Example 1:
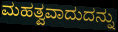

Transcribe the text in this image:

ಮಹತ್ವವಾದುದನ್ನು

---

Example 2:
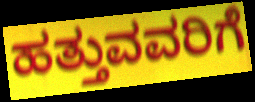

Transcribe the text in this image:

ಹತ್ತುವವರಿಗೆ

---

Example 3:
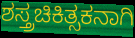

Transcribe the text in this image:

ಶಸ್ತ್ರಚಿಕಿತ್ಸಕನಾಗಿ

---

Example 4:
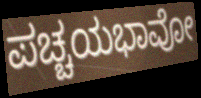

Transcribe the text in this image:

ಪಚ್ಚಯಭಾವೋ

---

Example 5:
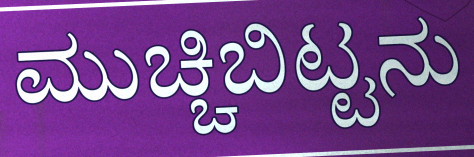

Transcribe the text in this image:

ಮುಚ್ಚಿಬಿಟ್ಟನು